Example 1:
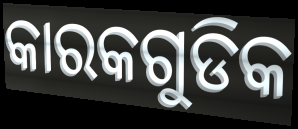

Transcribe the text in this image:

କାରକଗୁଡିକ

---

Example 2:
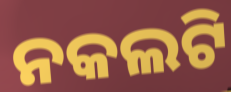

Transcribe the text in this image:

ନକଲଟି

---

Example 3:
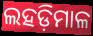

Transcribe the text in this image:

ଲହଡ଼ିମାଳ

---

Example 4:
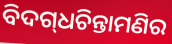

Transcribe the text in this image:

ବିଦଗ୍‌ଧଚିନ୍ତାମଣିର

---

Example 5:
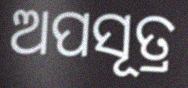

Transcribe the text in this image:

ଅପସୂତ୍ର